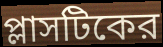
প্লাসটিকের